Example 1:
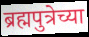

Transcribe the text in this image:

ब्रह्मपुत्रेच्या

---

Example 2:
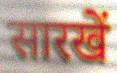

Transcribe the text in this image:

सारखें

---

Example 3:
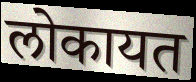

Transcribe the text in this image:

लोकायत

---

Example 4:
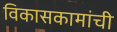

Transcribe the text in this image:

विकासकामांची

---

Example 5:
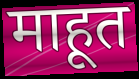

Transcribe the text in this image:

माहूत